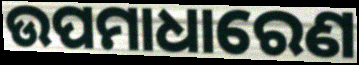
ଉପମାଧାରେଣ